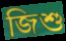
জিশু